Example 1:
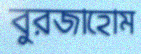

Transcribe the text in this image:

বুরজাহোম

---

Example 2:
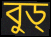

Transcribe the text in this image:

বুড্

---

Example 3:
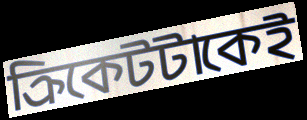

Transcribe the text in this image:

ক্রিকেটটাকেই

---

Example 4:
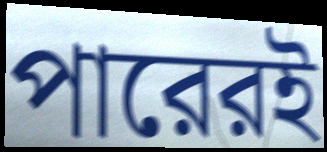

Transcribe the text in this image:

পারেরই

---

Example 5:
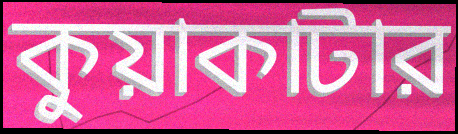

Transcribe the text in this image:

কুয়াকাটার